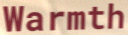
Warmth